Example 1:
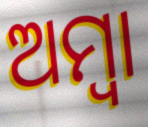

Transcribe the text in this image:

ଅମ୍ବା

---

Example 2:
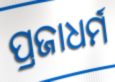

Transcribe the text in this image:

ପ୍ରଜାଧର୍ମ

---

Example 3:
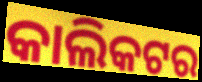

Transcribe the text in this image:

କାଲିକଟର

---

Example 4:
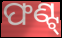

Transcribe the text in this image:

ଫଣ୍ଟ୍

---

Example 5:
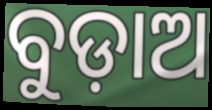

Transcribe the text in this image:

ବୁଡ଼ାଅ